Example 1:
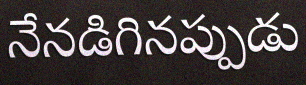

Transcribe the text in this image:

నేనడిగినప్పుడు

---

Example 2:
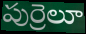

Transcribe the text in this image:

పుర్రెలూ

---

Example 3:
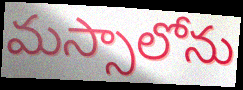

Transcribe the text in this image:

మస్సాలోను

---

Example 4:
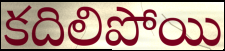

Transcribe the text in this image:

కదిలిపోయి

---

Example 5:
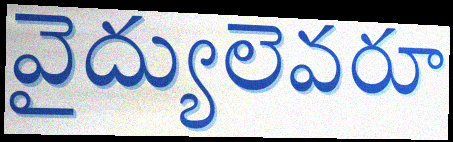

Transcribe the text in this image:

వైద్యులెవరూ